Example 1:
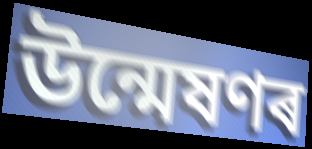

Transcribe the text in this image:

উন্মেষণৰ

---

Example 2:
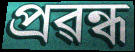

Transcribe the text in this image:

প্ৰৱন্ধ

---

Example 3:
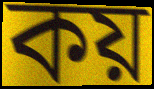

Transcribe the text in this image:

কয়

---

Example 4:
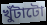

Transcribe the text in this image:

খুঁটাটো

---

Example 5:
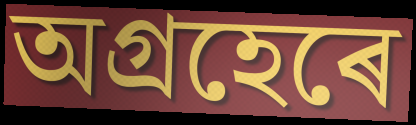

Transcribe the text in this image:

অগ্ৰহেৰে